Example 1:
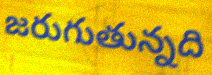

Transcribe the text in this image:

జరుగుతున్నది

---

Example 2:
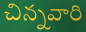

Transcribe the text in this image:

చిన్నవారి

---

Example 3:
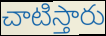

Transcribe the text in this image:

చాటిస్తారు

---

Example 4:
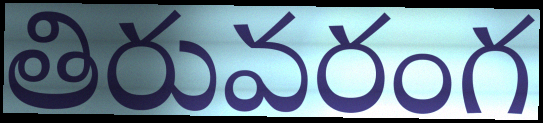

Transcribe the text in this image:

తిరువరంగ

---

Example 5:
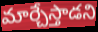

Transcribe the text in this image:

మార్చేస్తాడని